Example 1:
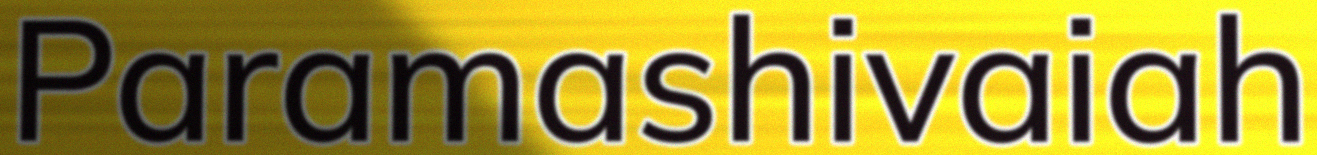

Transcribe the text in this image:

Paramashivaiah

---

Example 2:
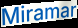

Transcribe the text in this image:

Miramar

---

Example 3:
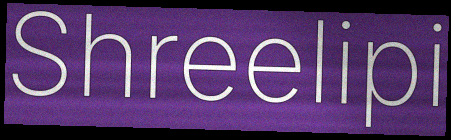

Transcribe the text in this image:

Shreelipi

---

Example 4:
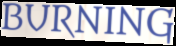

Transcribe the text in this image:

BURNING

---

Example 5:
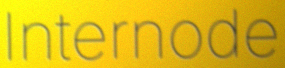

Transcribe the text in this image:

Internode